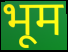
भूम